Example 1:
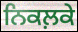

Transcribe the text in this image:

ਨਿਕਲ਼ਕੇ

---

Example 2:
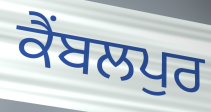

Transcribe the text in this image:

ਕੈਂਬਲਪੁਰ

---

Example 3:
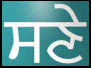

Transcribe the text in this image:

ਸਣੇ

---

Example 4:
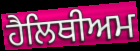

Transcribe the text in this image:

ਹੈਲਿਥੀਅਮ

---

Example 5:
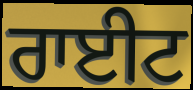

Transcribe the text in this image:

ਰਾਈਟ